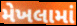
મેખલામાં